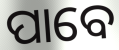
ପାବେ